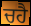
ਚਹੈ